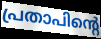
പ്രതാപിന്റെ